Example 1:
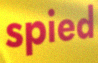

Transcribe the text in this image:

spied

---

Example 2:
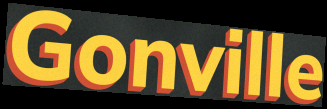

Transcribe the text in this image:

Gonville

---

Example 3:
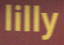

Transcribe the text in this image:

lilly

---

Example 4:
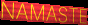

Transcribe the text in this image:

NAMASTE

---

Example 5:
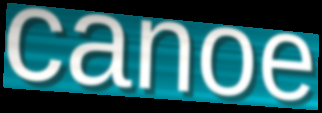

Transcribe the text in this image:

canoe